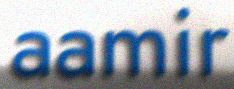
aamir